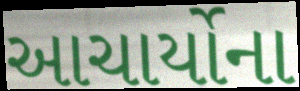
આચાર્યોના